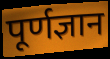
पूर्णज्ञान